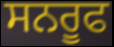
ਸਨਰੂਫ